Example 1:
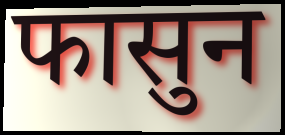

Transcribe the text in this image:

फासुन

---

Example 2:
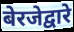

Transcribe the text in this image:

बेरजेद्वारे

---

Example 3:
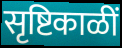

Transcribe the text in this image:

सृष्टिकाळीं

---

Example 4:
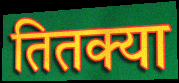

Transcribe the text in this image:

तितक्या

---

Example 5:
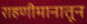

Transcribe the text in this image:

राहणीमानातून